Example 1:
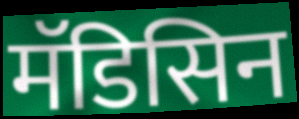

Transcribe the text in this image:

मॅडिसिन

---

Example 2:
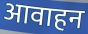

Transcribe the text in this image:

आवाहन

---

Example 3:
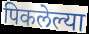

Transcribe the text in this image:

पिकलेल्या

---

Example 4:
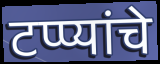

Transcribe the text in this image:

टप्प्यांचे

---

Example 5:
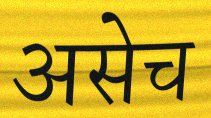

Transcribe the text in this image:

असेच